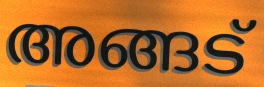
അങ്ങട്